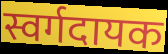
स्वर्गदायक